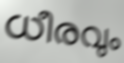
ധീരവും